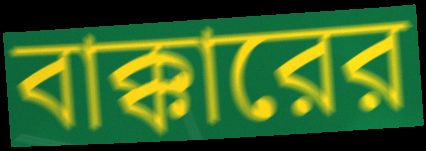
বাক্কারের